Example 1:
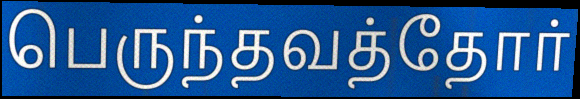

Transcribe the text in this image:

பெருந்தவத்தோர்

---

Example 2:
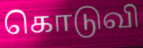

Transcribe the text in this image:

கொடுவி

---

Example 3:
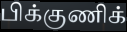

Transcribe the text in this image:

பிக்குணிக்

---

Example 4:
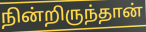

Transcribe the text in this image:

நின்றிருந்தான்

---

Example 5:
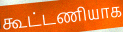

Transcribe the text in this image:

கூட்டணியாக